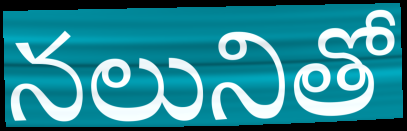
నలునితో